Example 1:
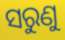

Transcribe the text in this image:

ସରୁଣୁ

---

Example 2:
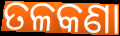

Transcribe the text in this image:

ତଳକଣା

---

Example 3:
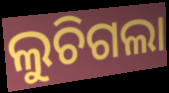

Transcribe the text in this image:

ଲୁଚିଗଲା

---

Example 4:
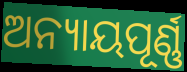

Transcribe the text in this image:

ଅନ୍ୟାୟପୂର୍ଣ୍ଣ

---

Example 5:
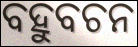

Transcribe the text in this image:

ବହୁବଚନ